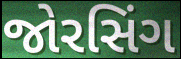
જોરસિંગ